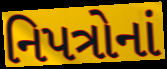
નિપત્રોનાં